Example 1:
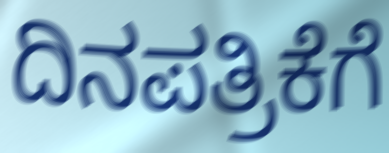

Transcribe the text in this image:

ದಿನಪತ್ರಿಕೆಗೆ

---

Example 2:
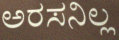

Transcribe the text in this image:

ಅರಸನಿಲ್ಲ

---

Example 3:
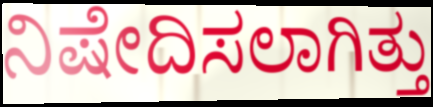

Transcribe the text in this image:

ನಿಷೇದಿಸಲಾಗಿತ್ತು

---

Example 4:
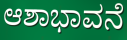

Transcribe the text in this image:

ಆಶಾಭಾವನೆ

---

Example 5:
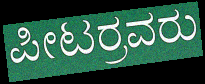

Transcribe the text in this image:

ಪೀಟರ್‍ರವರು